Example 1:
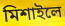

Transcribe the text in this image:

মিশাইলে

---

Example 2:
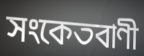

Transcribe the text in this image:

সংকেতবাণী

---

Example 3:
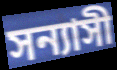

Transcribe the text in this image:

সন্যাসী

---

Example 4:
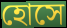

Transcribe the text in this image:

হোসে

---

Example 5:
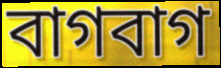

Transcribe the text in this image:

বাগবাগ